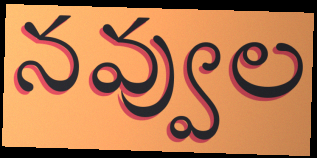
నవ్వుల